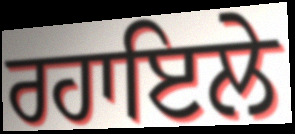
ਰਹਾਇਲੇ